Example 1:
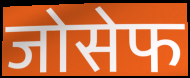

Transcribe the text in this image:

जोसेफ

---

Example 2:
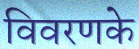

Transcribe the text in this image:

विवरणके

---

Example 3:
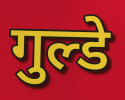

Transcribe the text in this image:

गुल्डे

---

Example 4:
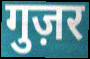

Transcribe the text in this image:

गुज़र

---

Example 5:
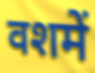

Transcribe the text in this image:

वशमें